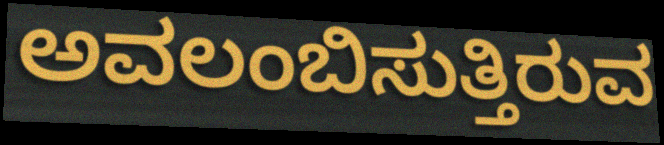
ಅವಲಂಬಿಸುತ್ತಿರುವ